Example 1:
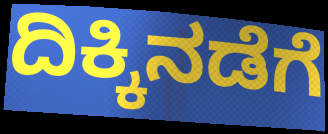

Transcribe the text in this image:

ದಿಕ್ಕಿನಡೆಗೆ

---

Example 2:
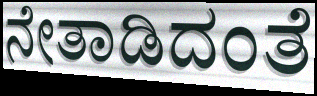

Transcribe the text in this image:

ನೇತಾಡಿದಂತೆ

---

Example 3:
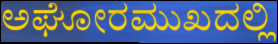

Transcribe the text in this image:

ಅಘೋರಮುಖದಲ್ಲಿ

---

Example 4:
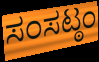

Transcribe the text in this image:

ಸಂಸಟ್ಠಂ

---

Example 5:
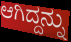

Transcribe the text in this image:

ಆಗಿದ್ದನ್ನು